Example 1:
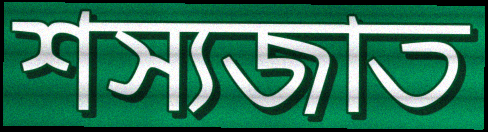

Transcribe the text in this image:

শস্যজাত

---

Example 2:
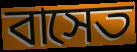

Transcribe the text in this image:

বাসেত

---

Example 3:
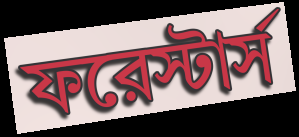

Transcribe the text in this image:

ফরেস্টার্স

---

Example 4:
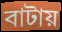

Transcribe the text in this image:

বাটায়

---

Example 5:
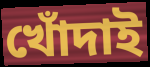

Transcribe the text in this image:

খোঁদাই